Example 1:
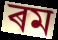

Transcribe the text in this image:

ৰম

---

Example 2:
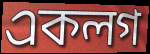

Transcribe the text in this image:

একলগ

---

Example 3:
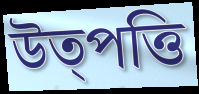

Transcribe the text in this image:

উত্পত্তি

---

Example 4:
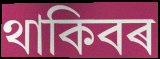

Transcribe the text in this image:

থাকিবৰ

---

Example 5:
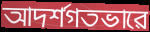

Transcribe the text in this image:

আদৰ্শগতভাৱে